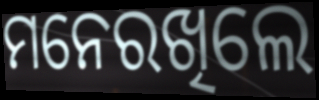
ମନେରଖିଲେ